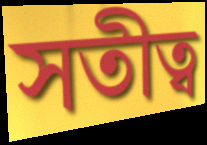
সতীত্ব